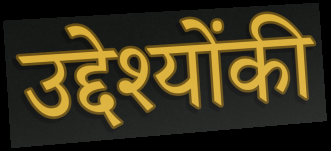
उद्देश्योंकी